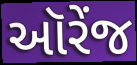
ઑરેંજ